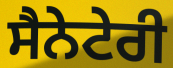
ਸੈਨੇਟੇਰੀ